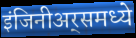
इंजिनीअर्समध्ये